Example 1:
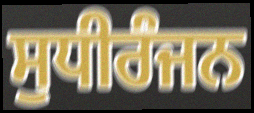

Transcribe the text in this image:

ਸੁਧੀਰੰਜਨ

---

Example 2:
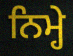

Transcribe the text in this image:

ਨਿਮ੍ਹੇ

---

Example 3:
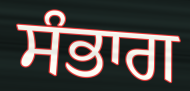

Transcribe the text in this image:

ਸੰਭਾਗ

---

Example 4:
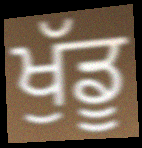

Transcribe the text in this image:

ਖੁੱਡੂ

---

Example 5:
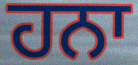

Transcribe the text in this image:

ਹਨਾ